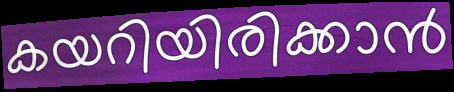
കയറിയിരിക്കാൻ